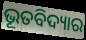
ଭୂତବିଦ୍ୟାର